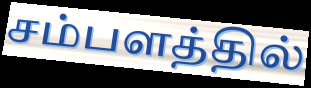
சம்பளத்தில்